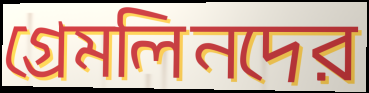
গ্রেমলিনদের